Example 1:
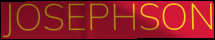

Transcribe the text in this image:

JOSEPHSON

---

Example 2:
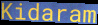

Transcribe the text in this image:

Kidaram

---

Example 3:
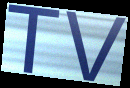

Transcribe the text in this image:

TV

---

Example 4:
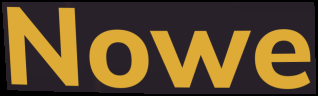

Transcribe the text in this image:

Nowe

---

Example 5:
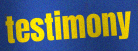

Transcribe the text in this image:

testimony